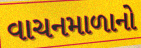
વાચનમાળાનો